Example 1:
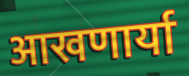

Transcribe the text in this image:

आखणार्या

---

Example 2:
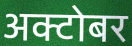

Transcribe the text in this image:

अक्टोबर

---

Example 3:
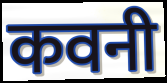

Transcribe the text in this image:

कवनी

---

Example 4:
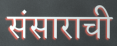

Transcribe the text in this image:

संसाराची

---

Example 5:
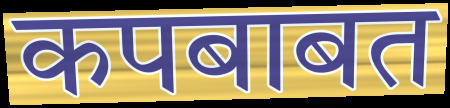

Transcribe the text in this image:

कपबाबत